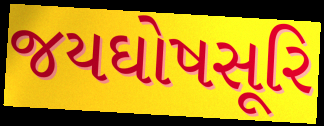
જયઘોષસૂરિ